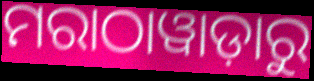
ମରାଠାୱାଡ଼ାରୁ